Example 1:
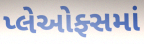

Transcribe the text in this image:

પ્લેઓફ્સમાં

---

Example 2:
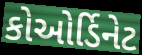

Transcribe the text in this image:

કોઓર્ડિનેટ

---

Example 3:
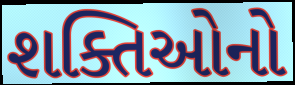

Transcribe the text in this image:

શક્તિઓનો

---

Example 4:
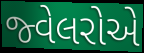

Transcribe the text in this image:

જ્વેલરોએ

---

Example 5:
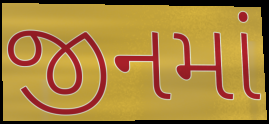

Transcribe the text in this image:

જીનમાં